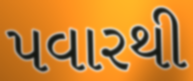
પવારથી